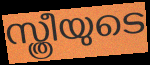
സ്ത്രീയുടെ